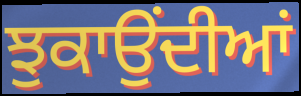
ਝੁਕਾਉਂਦੀਆਂ